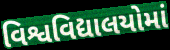
વિશ્વવિદ્યાલયોમાં